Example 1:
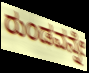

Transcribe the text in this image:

ರುಂಡವನ್ನೇ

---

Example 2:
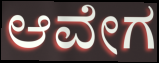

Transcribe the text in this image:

ಆವೇಗ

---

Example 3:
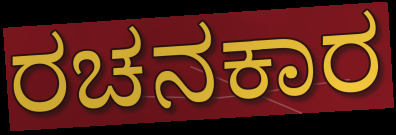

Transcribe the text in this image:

ರಚನಕಾರ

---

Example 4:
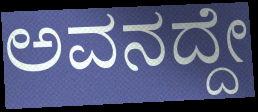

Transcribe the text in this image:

ಅವನದ್ದೇ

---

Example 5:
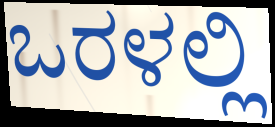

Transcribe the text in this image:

ಒರಳಲ್ಲಿ